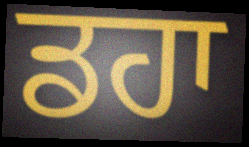
ਡਹਾ